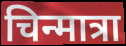
चिन्मात्रा